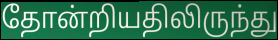
தோன்றியதிலிருந்து